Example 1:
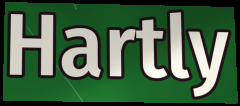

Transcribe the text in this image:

Hartly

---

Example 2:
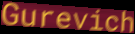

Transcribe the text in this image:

Gurevich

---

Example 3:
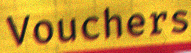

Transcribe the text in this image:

Vouchers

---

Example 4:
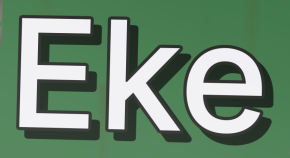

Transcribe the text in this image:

Eke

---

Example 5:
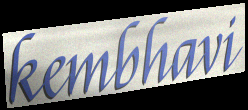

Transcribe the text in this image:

kembhavi